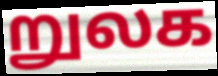
றுலக